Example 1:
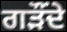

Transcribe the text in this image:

ਗੜੌਂਦੇ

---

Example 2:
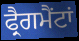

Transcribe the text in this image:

ਫ੍ਰੈਗਮੈਂਟਾਂ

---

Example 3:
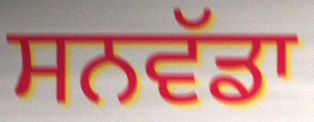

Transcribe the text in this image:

ਸਨਵੱਡਾ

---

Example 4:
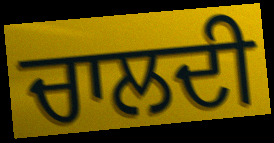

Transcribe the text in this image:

ਚਾਲਦੀ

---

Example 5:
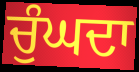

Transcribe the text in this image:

ਚੁੰਘਦਾ